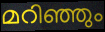
മറിഞ്ഞും